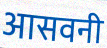
आसवनी